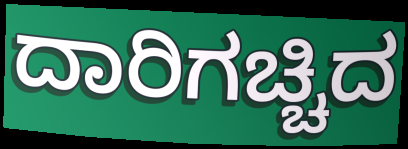
ದಾರಿಗಚ್ಚಿದ